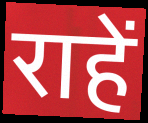
राहें